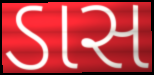
ડાસ